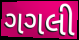
ગગલી